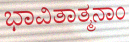
ಭಾವಿತಾತ್ಮನಾಂ